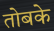
तोबके